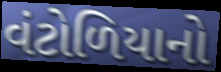
વંટોળિયાનો